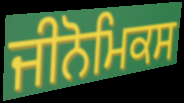
ਜੀਨੋਮਿਕਸ